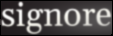
signore